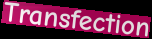
Transfection